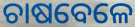
ଚାଷବେଳେ